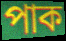
পাক